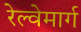
रेल्वेमार्ग